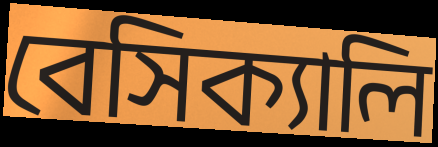
বেসিক্যালি